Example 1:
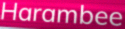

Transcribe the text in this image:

Harambee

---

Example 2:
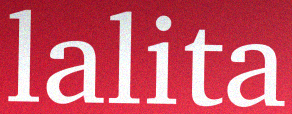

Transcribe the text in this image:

lalita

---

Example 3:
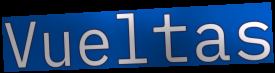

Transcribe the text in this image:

Vueltas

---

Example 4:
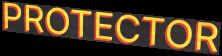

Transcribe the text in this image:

PROTECTOR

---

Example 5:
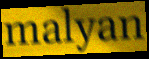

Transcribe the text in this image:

malyan